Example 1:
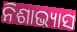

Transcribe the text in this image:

ନିଶାଭ୍ୟାସ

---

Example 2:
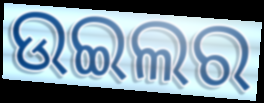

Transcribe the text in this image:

ଉଇଲର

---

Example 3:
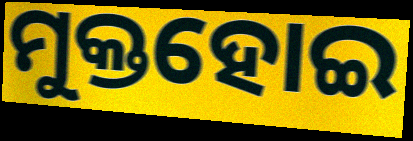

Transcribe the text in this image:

ମୁକ୍ତହୋଇ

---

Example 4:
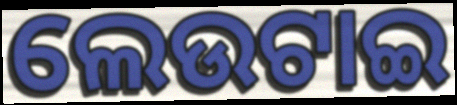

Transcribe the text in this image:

ଲେଉଟାଇ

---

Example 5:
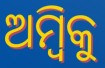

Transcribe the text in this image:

ଅମ୍ବିକୁ